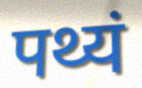
पथ्यं